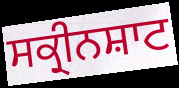
ਸਕ੍ਰੀਨਸ਼ਾਟ